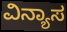
ವಿನ್ಯಾಸ